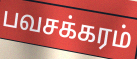
பவசக்கரம்